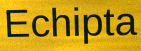
Echipta